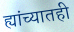
ह्यांच्यातही